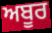
ਅਬੂਰ